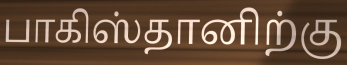
பாகிஸ்தானிற்கு